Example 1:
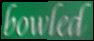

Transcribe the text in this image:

bowled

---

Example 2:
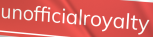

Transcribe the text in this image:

unofficialroyalty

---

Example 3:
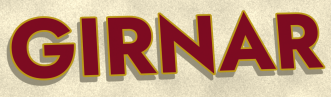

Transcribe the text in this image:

GIRNAR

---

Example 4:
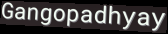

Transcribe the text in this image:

Gangopadhyay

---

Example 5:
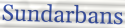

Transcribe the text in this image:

Sundarbans